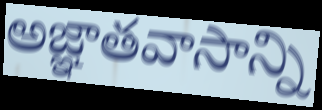
అజ్ఞాతవాసాన్ని